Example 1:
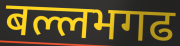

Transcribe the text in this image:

बल्लभगढ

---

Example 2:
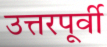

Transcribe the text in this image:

उत्तरपूर्वी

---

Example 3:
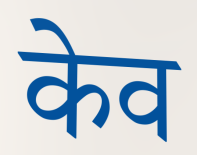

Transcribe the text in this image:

केव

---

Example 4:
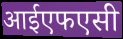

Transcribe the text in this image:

आईएफएसी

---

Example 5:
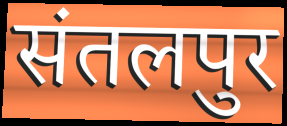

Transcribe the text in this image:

संतलपुर